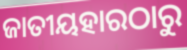
ଜାତୀୟହାରଠାରୁ